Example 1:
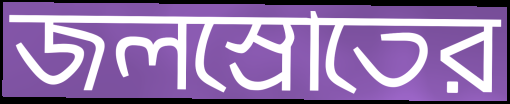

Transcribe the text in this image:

জলস্রোতের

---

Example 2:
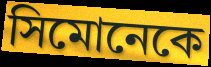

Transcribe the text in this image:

সিমোনেকে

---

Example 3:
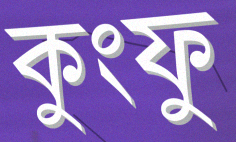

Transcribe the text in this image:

কুংফু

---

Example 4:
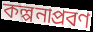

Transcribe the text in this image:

কল্পনাপ্রবণ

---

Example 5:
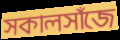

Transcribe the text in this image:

সকালসাঁজে